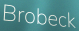
Brobeck